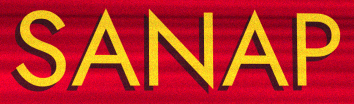
SANAP